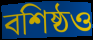
বশিষ্ঠও